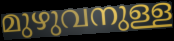
മുഴുവനുള്ള